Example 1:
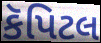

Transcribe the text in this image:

કૅપિટલ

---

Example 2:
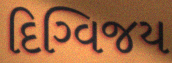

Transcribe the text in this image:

દિગ્વિજય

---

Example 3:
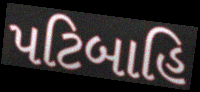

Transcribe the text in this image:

પટિબાહિ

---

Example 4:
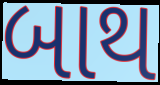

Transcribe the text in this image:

બાથ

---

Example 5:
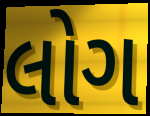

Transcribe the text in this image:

લોગ